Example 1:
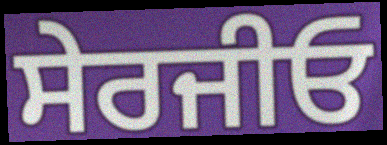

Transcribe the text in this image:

ਸੇਰਜੀਓ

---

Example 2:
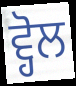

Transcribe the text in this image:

ਵ੍ਹੋਲ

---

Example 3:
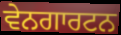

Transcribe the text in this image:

ਵੇਨਗਾਰਟਨ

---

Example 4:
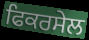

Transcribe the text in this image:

ਫਿਕਰਸੇਲ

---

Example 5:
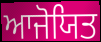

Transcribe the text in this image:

ਆਜੋਯਿਤ